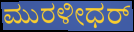
ಮುರಳೀಧರ್